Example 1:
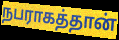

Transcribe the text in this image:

நபராகத்தான்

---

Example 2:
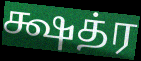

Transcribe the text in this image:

க்ஷத்ர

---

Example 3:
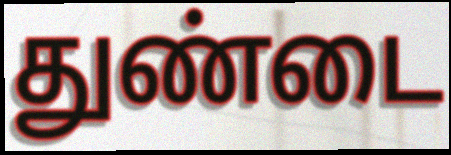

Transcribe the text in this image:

துண்டை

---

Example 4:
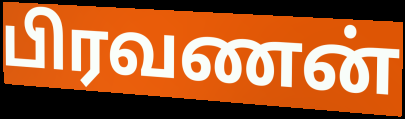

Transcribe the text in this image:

பிரவணன்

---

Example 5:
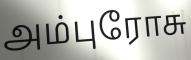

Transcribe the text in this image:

அம்புரோசு